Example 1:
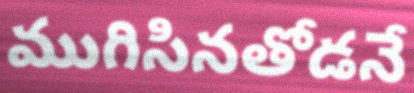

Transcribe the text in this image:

ముగిసినతోడనే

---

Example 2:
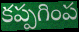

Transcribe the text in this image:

కప్పగింప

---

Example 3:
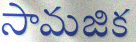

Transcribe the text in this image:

సామజిక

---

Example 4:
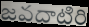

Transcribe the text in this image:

జవదాటిరి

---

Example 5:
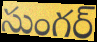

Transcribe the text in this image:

సుంగర్